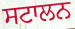
ਸਟਾਲਨ